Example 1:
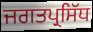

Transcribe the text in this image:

ਜਗਤਪ੍ਰਸਿੱਧ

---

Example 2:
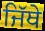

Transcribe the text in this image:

ਜਿੱਥੇ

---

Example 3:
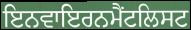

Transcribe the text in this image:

ਇਨਵਾਇਰਨਮੈਂਟਲਿਸਟ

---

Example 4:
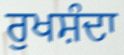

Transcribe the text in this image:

ਰੁਖਸ਼ੰਦਾ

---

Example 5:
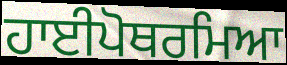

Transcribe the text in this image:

ਹਾਈਪੋਥਰਮਿਆ